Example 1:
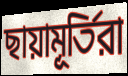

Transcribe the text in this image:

ছায়ামূর্তিরা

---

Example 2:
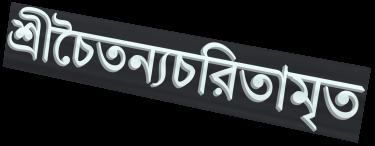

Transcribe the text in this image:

শ্রীচৈতন্যচরিতামৃত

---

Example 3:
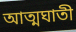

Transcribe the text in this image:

আত্মঘাতী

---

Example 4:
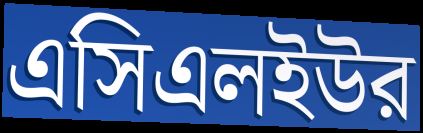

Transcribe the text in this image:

এসিএলইউর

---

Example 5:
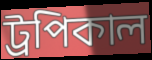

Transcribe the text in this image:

ট্রপিকাল